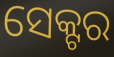
ସେକ୍ଟର